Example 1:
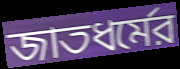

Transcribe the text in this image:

জাতধর্মের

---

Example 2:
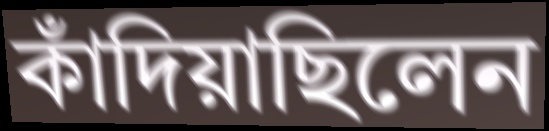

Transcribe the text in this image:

কাঁদিয়াছিলেন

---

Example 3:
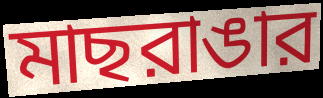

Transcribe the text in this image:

মাছরাঙার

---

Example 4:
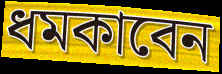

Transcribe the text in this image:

ধমকাবেন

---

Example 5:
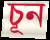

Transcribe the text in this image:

চূন